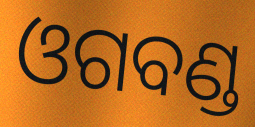
ଓଗବଣ୍ଡ